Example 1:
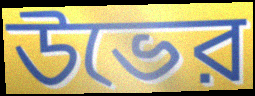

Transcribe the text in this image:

উভের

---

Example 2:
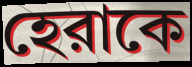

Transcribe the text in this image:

হেরাকে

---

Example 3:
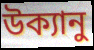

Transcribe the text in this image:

উক্যানু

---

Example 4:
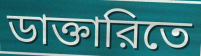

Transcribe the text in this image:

ডাক্তারিতে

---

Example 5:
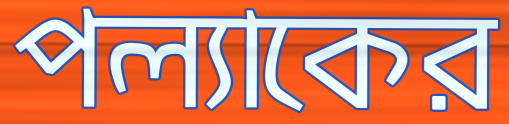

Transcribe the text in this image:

পল্যাকের